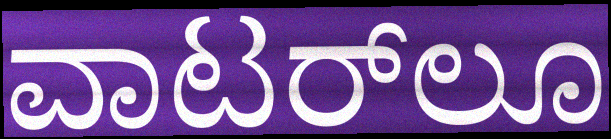
ವಾಟರ್‌ಲೂ